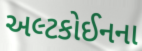
અલ્ટકોઈનના